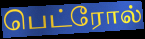
பெட்ரோல்